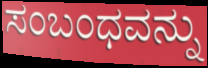
ಸಂಬಂಧವನ್ನು